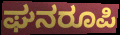
ಘನರೂಪಿ